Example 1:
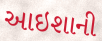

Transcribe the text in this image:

આઇશાની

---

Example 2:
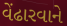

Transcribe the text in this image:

વેંઢારવાને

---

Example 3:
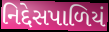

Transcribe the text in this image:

નિદ્દેસપાળિયં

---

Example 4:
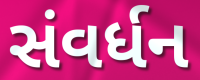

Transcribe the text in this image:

સંવર્ધન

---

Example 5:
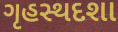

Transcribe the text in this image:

ગૃહસ્થદશા